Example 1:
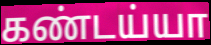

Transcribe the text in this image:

கண்டய்யா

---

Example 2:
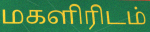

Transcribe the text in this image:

மகளிரிடம்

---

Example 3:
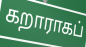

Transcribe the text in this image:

கறாராகப்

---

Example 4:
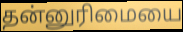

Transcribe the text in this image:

தன்னுரிமையை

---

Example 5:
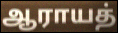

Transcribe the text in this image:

ஆராயத்